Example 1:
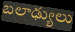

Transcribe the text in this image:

బలాఢ్యులు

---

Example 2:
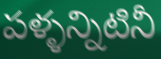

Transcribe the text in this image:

పళ్ళన్నిటినీ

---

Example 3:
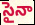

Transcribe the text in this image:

సైనా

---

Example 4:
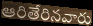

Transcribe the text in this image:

ఆరితేరినవారు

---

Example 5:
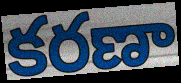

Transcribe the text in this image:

కరణా